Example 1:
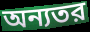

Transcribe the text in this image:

অন্যতর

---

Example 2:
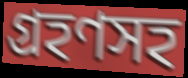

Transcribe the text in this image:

গ্রহণসহ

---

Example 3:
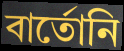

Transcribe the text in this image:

বার্তোনি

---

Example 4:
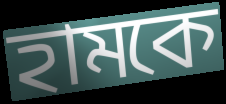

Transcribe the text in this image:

হামকে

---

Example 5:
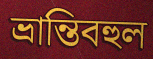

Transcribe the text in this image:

ভ্রান্তিবহুল